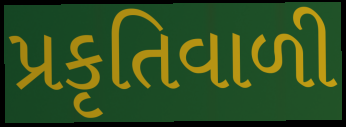
પ્રકૃતિવાળી